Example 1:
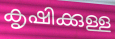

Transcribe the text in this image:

കൃഷിക്കുള്ള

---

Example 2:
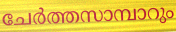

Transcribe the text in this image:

ചേർത്തസാമ്പാറും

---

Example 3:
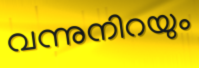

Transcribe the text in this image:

വന്നുനിറയും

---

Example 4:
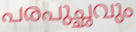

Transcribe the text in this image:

പരപുച്ഛവും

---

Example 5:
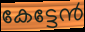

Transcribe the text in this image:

കേട്ടേൻ